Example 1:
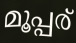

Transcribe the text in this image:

മൂപ്പര്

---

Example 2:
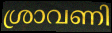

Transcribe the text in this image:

ശ്രാവണി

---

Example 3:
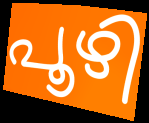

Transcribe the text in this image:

പൂഴി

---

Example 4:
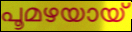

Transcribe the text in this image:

പൂമഴയായ്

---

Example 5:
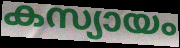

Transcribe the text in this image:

കസ്യായം